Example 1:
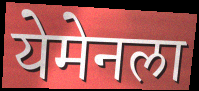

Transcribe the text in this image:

येमेनला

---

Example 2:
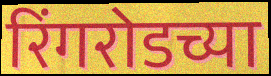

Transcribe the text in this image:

रिंगरोडच्या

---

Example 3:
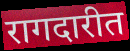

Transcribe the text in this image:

रागदारीत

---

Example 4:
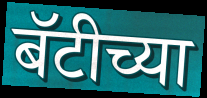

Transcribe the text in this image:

बॅटीच्या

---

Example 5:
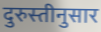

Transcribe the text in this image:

दुरुस्तीनुसार